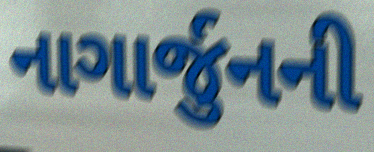
નાગાર્જુનની